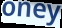
oney